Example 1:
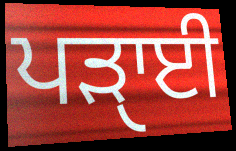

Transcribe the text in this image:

ਪੜਾੑਈ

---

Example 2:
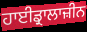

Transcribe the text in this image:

ਹਾਈਡ੍ਰਾਲਾਜ਼ੀਨ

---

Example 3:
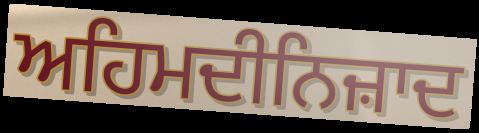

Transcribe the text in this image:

ਅਹਿਮਦੀਨਿਜ਼ਾਦ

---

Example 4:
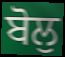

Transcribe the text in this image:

ਬੋਲੁ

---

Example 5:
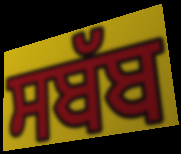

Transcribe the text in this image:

ਸਬੱਬ